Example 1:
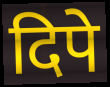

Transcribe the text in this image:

दिपे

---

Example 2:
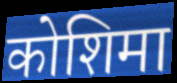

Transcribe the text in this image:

कोशिमा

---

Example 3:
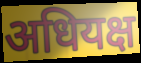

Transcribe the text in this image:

अधियक्ष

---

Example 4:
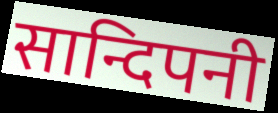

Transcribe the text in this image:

सान्दिपनी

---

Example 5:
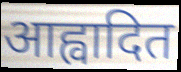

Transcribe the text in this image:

आह्वादित